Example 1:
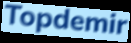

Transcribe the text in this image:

Topdemir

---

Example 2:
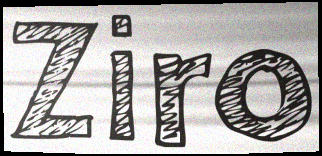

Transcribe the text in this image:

Ziro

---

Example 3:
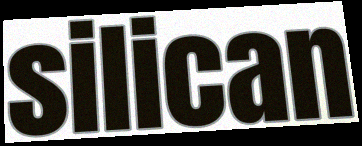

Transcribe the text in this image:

silican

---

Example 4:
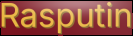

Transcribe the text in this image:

Rasputin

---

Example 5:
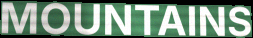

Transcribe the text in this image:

MOUNTAINS